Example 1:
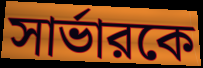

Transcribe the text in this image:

সার্ভারকে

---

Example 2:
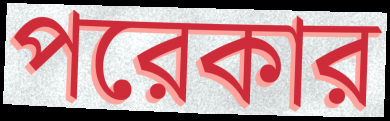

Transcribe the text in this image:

পরেকার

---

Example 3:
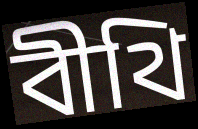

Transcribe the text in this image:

বীথি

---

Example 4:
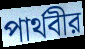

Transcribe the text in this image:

পার্থবীর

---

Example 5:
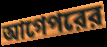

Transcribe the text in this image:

আগেপরের